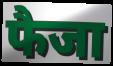
फैजा